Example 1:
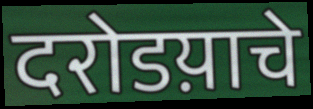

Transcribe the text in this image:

दरोडय़ाचे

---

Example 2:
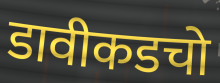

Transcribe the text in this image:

डावीकडचो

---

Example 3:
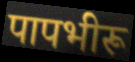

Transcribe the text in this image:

पापभीरू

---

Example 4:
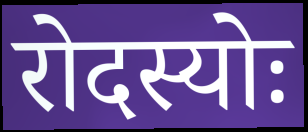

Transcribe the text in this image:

रोदस्योः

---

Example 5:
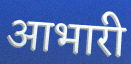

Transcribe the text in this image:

आभारी